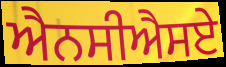
ਐਨਸੀਐਸਏ